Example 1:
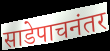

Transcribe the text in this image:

साडेपाचनंतर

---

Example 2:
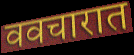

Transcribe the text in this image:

ववचारात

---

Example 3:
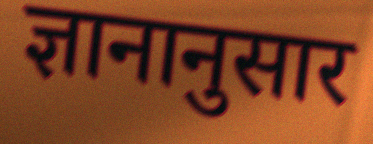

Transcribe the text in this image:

ज्ञानानुसार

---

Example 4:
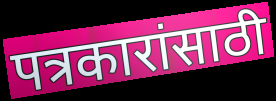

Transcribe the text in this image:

पत्रकारांसाठी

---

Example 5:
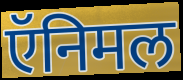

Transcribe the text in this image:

ऍनिमल